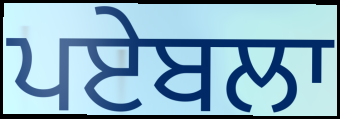
ਪਏਬਲਾ